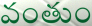
వంతుం